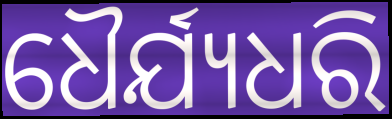
ଧୈର୍ଯ୍ୟଧରି